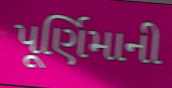
પૂર્ણિમાની